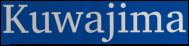
Kuwajima